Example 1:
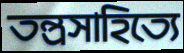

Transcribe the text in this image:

তন্ত্রসাহিত্যে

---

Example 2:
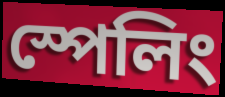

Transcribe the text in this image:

স্পেলিং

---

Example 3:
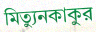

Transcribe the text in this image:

মিত্যুনকাকুর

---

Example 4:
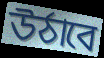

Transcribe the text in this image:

উঠাবে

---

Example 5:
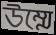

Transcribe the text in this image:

উম্মে